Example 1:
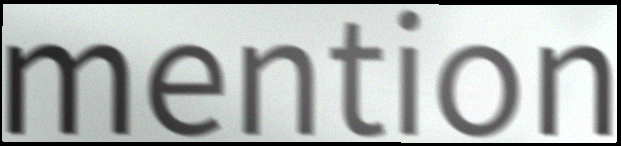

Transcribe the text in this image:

mention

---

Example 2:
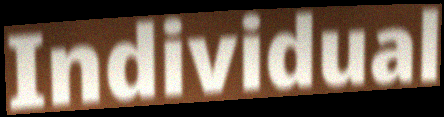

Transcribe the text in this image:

Individual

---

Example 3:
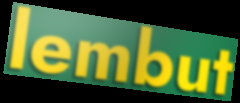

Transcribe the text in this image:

lembut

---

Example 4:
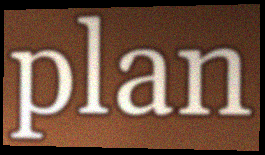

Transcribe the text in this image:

plan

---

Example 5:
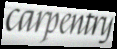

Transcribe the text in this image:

carpentry